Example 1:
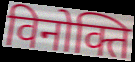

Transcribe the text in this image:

विनोक्ति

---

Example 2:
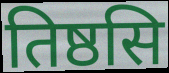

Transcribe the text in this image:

तिष्ठसि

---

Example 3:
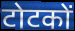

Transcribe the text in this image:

टोटकों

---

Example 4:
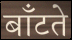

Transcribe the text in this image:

बाँटते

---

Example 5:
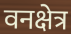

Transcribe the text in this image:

वनक्षेत्र